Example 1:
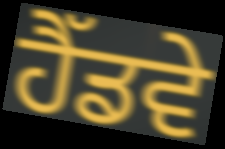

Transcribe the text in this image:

ਹੈੱਡਵੇ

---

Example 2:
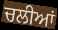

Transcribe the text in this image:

ਚਲੀਆਂ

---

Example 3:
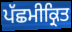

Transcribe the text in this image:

ਪੱਛਮੀਕ੍ਰਿਤ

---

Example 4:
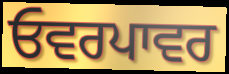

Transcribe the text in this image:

ਓਵਰਪਾਵਰ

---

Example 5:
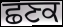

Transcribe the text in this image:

ਛਣਕ